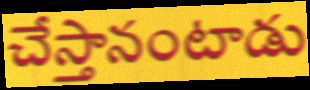
చేస్తానంటాడు